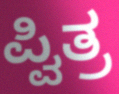
ಪ್ವಿತ್ರ